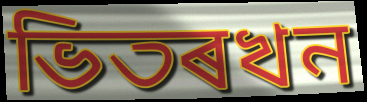
ভিতৰখন